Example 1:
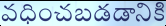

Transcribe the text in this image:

వధించబడడానికి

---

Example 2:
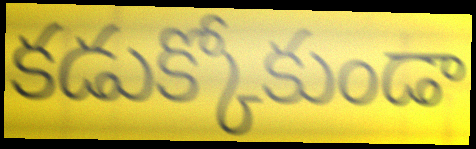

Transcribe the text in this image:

కడుక్కోకుండా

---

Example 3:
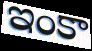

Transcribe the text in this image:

ఇంకా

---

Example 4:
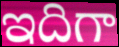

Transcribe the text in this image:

ఇదిగా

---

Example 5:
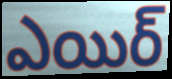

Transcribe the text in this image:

ఎయిర్